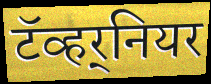
टॅव्हर्नियर